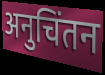
अनुचिंतन